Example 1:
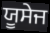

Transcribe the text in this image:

ਯੂਸੇਜ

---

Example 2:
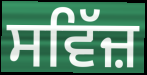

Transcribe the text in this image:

ਸਵਿੱਜ਼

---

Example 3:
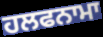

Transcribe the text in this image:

ਹਲਫਨਾਮਾ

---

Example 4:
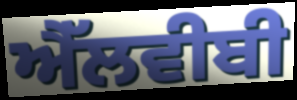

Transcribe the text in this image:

ਐੱਲਵੀਬੀ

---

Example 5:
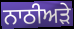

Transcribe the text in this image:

ਨਾਠੀਅੜੇ